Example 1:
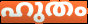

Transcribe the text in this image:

ഹുതം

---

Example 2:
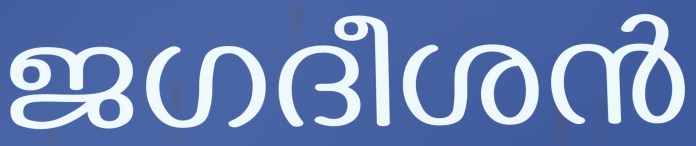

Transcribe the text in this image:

ജഗദീശൻ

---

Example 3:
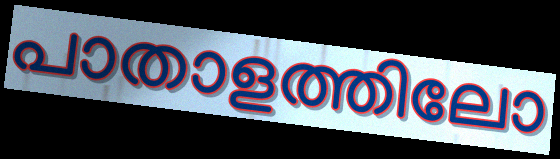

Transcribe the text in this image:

പാതാളത്തിലോ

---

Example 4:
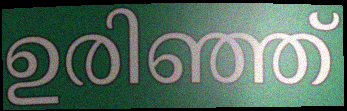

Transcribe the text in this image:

ഉരിഞ്ഞ്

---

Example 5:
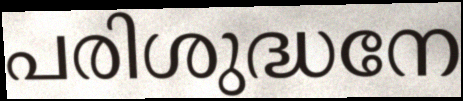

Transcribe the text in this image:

പരിശുദ്ധനേ